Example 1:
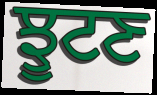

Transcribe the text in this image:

ਝੂਟਣ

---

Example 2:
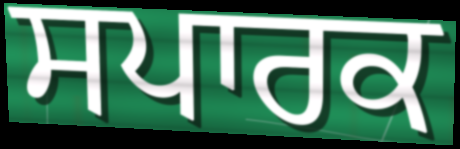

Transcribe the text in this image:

ਸਪਾਰਕ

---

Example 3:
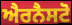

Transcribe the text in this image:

ਐਰਨੈਸਟੋ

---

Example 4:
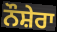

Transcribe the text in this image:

ਨੌਸ਼ੇਰਾ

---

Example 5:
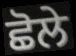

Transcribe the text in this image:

ਛੋਲੇ